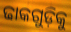
ଢାକଗୁଡ଼ିକୁ